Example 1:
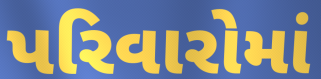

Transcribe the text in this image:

પરિવારોમાં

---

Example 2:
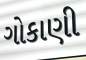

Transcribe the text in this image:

ગોકાણી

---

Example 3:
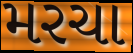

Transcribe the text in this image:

મરચા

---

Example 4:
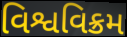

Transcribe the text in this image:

વિશ્વવિક્રમ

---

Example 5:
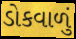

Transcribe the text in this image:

ડોકવાળું